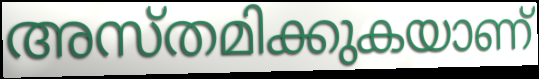
അസ്തമിക്കുകയാണ്